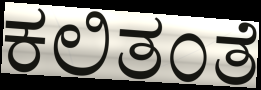
ಕಲಿತಂತೆ